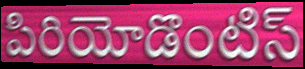
పిరియోడొంటిస్